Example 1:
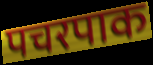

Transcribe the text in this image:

पचरपाक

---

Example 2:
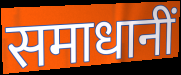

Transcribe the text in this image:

समाधानीं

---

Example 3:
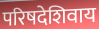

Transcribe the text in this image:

परिषदेशिवाय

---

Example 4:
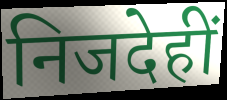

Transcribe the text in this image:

निजदेहीं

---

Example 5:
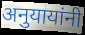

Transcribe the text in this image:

अनुयायांनी